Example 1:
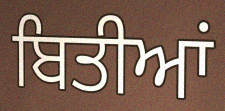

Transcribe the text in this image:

ਬਿਤੀਆਂ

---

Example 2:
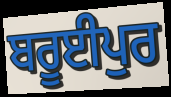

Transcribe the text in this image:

ਬਰੂਈਪੁਰ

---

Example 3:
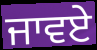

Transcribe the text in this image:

ਜਾਵਏ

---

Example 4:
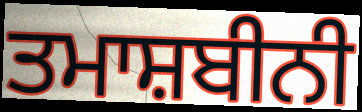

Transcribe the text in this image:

ਤਮਾਸ਼ਬੀਨੀ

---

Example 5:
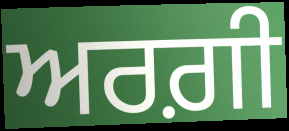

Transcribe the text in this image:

ਅਰਗ਼ੀ